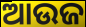
ଆଉଜ